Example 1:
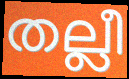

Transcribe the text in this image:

തല്ലീ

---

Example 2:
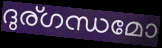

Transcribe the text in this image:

ദുര്ഗന്ധമോ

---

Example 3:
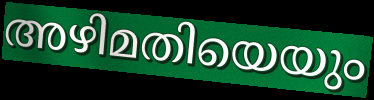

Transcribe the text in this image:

അഴിമതിയെയും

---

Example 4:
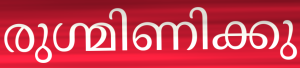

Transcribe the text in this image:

രുഗ്മിണിക്കു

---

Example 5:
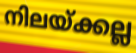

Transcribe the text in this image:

നിലയ്ക്കല്ല